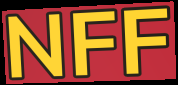
NFF